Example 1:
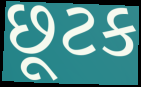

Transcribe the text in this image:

છૂટક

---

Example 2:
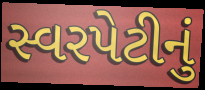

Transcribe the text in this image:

સ્વરપેટીનું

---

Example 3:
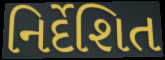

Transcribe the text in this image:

નિર્દેશિત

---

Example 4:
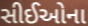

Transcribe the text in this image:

સીઈઓના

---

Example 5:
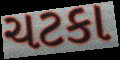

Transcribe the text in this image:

ચટકા